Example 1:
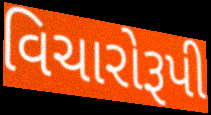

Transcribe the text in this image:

વિચારોરૂપી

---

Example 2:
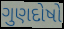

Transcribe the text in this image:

ગુણદોષો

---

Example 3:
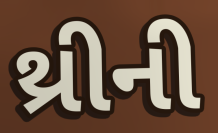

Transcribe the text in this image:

થ્રીની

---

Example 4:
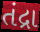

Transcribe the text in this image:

તંદ્રા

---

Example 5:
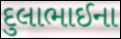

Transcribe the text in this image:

દુલાભાઈના